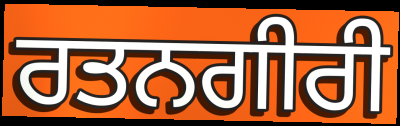
ਰਤਨਗੀਰੀ